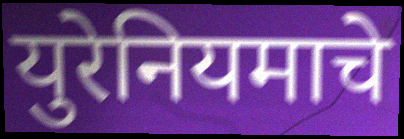
युरेनियमाचे